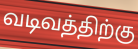
வடிவத்திற்கு